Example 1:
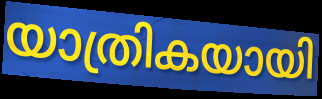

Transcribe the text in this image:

യാത്രികയായി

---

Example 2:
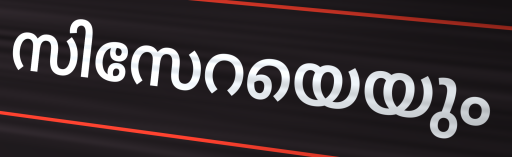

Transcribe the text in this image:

സിസേറയെയും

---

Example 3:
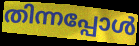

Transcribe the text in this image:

തിന്നപ്പോൾ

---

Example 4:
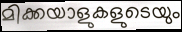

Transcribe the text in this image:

മിക്കയാളുകളുടെയും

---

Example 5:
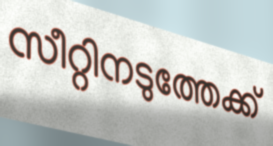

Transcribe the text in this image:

സീറ്റിനടുത്തേക്ക്